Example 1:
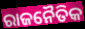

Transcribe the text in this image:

ରାଜନୈତିକ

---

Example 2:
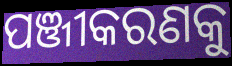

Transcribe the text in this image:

ପଞ୍ଜୀକରଣକୁ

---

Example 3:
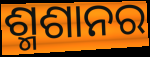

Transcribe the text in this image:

ଶ୍ମଶାନର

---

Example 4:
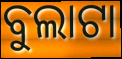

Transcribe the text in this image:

ବୁଲାଟା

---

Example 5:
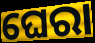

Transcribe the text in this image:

ଘେରା